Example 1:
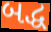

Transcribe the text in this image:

બદ્ધ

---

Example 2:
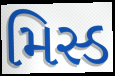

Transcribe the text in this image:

મિસ્ડ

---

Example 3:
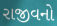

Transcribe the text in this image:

રાજીવનો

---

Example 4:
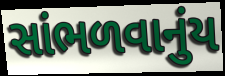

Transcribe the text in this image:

સાંભળવાનુંય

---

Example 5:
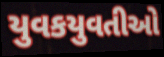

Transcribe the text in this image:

યુવકયુવતીઓ